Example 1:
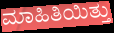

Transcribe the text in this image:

ಮಾಹಿತಿಯಿತ್ತು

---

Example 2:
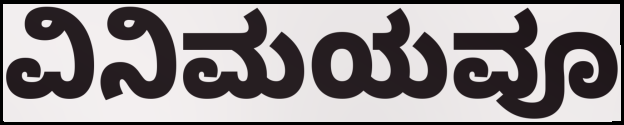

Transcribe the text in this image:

ವಿನಿಮಯವೂ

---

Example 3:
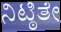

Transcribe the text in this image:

ನಿಟ್ಠಿತೇ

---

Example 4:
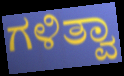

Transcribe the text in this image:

ಗಳಿತ್ವಾ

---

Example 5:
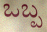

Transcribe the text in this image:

ಒಬ್ಪ